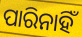
ପାରିନାହିଁ